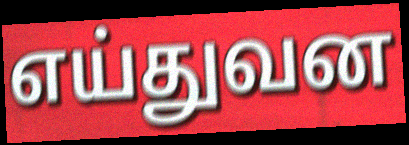
எய்துவன